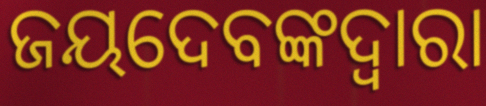
ଜୟଦେବଙ୍କଦ୍ୱାରା